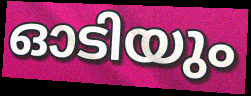
ഓടിയും